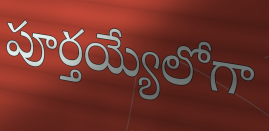
పూర్తయ్యేలోగా